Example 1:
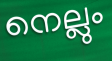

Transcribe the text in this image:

നെല്ലും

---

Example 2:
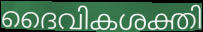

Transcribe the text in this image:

ദൈവികശക്തി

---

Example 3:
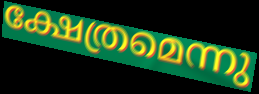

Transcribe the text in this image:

ക്ഷേത്രമെന്നു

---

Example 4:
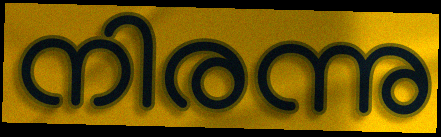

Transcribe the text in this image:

നിരന്നു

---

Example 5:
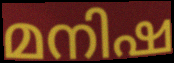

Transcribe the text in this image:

മനിഷ